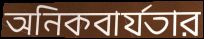
অনিকবার্যতার